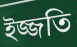
ইজ্জতি